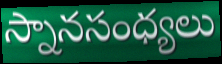
స్నానసంధ్యలు